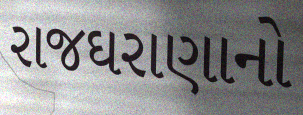
રાજઘરાણાનો